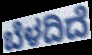
ಬೆಳದಿದೆ